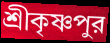
শ্রীকৃষ্ণপুর